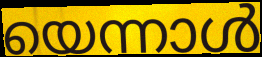
യെന്നാൾ